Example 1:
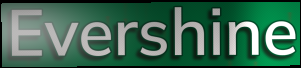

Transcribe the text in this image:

Evershine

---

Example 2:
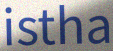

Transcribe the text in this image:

istha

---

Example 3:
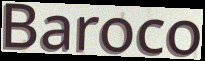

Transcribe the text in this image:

Baroco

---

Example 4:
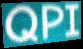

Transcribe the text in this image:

QPI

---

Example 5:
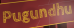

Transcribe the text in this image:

Pugundhu